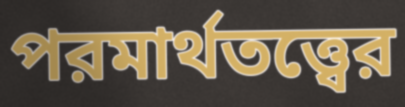
পরমার্থতত্ত্বের